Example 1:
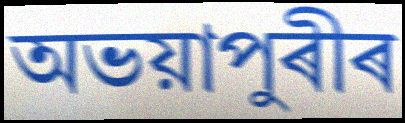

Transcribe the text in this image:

অভয়াপুৰীৰ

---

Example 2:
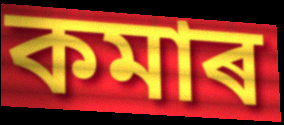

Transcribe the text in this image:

কমাৰ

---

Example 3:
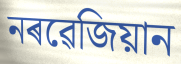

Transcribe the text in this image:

নৰৱেজিয়ান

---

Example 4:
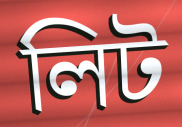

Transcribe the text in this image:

লিট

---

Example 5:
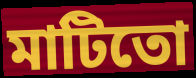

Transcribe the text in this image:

মাটিতো